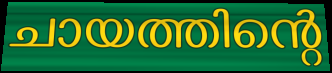
ചായത്തിന്റെ